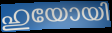
ഹുയോയി